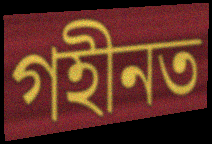
গহীনত